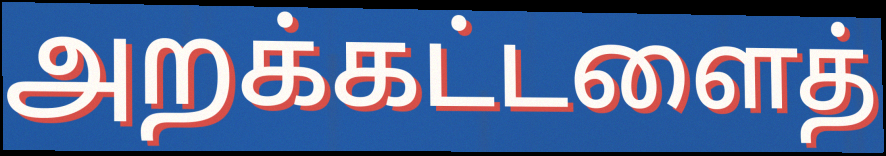
அறக்கட்டளைத்